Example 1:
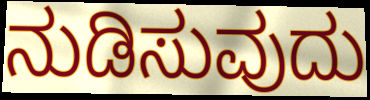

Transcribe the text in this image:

ನುಡಿಸುವುದು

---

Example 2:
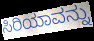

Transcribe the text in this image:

ಸಿರಿಯಾವನ್ನು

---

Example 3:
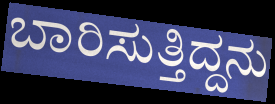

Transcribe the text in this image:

ಬಾರಿಸುತ್ತಿದ್ದನು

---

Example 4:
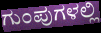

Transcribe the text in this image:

ಗುಂಪುಗಳಲ್ಲಿ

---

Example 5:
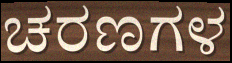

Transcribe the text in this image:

ಚರಣಗಳ